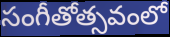
సంగీతోత్సవంలో